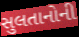
સુલતાનોની